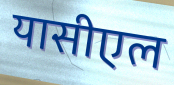
यासीएल